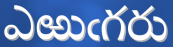
ఎఱుఁగరు